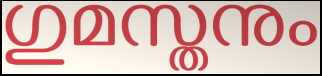
ഗുമസ്തനും